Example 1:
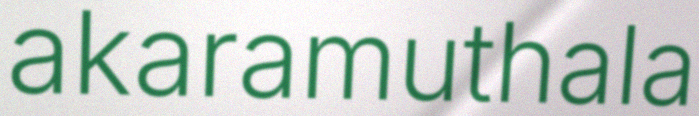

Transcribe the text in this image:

akaramuthala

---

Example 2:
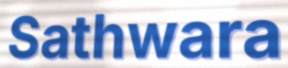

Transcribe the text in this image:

Sathwara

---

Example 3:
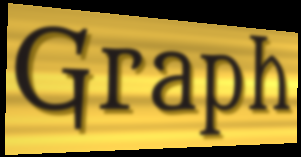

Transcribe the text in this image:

Graph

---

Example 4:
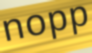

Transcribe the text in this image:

nopp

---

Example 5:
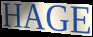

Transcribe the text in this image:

HAGE